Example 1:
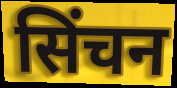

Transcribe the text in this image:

सिंचन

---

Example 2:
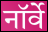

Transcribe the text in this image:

नॉर्वे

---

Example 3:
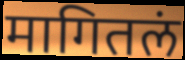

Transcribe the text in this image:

मागितलं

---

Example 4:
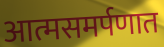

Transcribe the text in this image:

आत्मसमर्पणात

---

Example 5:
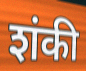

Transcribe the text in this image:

शंकी